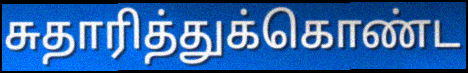
சுதாரித்துக்கொண்ட